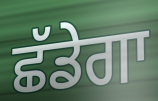
ਛੱਡੇਗਾ